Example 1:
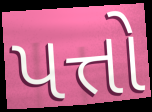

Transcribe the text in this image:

પત્તો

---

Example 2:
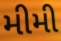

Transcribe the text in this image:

મીમી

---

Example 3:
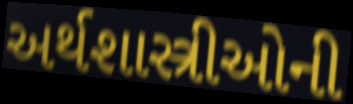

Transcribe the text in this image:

અર્થશાસ્ત્રીઓની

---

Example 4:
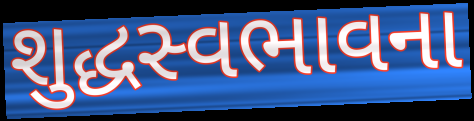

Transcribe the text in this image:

શુદ્ધસ્વભાવના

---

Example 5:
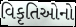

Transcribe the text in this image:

વિકૃતિઓનો